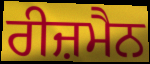
ਰੀਜ਼ਮੈਨ